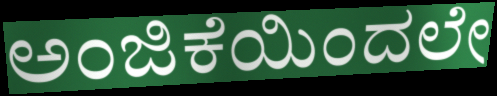
ಅಂಜಿಕೆಯಿಂದಲೇ